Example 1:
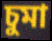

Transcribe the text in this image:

চুমা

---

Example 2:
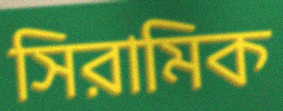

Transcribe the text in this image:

সিরামিক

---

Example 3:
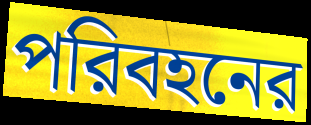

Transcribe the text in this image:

পরিবহনের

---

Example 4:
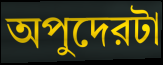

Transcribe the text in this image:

অপুদেরটা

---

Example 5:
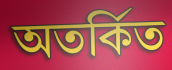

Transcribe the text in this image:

অতর্কিত